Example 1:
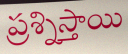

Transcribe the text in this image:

ప్రశ్నిస్తాయి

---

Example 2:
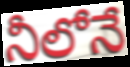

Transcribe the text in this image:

నీలోనే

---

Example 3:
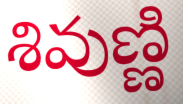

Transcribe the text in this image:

శివుణ్ణి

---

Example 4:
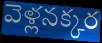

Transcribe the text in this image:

వెళ్లనక్కర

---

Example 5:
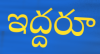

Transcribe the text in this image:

ఇద్దరూ